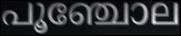
പൂഞ്ചോല